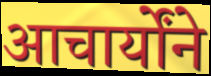
आचार्योंने